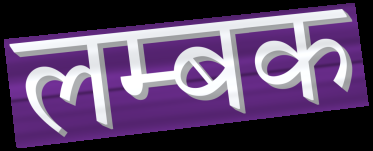
लम्बक